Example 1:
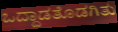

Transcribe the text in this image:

ಒದ್ದಾಡತೊಡಗಿತು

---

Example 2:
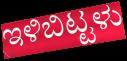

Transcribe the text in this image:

ಇಳಿಬಿಟ್ಟಳು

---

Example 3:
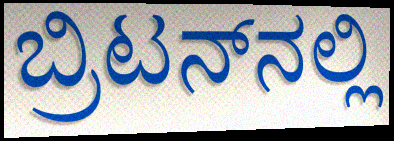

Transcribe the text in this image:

ಬ್ರಿಟನ್‌ನಲ್ಲಿ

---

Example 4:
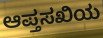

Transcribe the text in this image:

ಆಪ್ತಸಖಿಯ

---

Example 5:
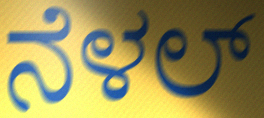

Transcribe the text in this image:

ನೆಳಲ್